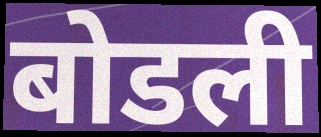
बोडली